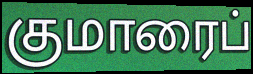
குமாரைப்